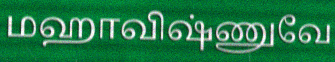
மஹாவிஷ்ணுவே